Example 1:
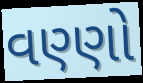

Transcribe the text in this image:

વણ્ણો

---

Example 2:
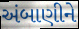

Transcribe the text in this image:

અંબાણીને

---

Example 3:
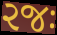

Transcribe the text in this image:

રજઃ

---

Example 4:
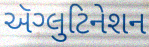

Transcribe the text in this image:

ઍગ્લુટિનેશન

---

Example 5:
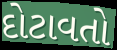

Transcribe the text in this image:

દોટાવતો